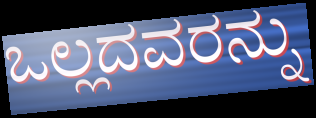
ಒಲ್ಲದವರನ್ನು